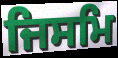
ਜਿਸਮਿ